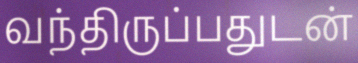
வந்திருப்பதுடன்